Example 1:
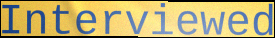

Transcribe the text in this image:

Interviewed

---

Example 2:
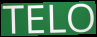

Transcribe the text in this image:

TELO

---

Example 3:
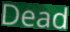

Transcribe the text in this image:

Dead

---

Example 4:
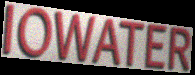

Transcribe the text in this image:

IOWATER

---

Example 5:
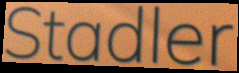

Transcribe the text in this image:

Stadler